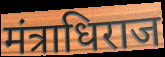
मंत्राधिराज